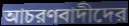
আচরণবাদীদের